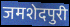
जमशेदपुरी